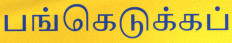
பங்கெடுக்கப்